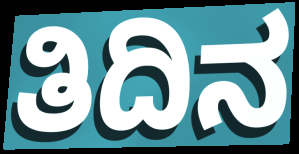
ತಿದಿನ